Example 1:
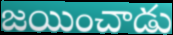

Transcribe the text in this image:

జయించాడు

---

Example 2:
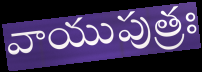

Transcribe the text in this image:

వాయుపుత్రః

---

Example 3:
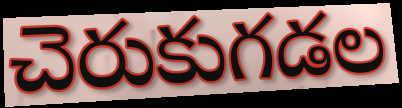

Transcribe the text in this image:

చెరుకుగడల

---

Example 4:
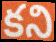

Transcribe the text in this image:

కని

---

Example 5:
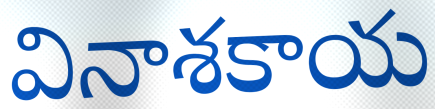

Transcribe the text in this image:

వినాశకాయ